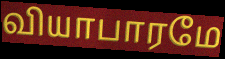
வியாபாரமே